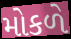
મોકળે